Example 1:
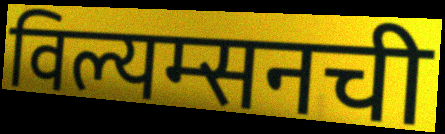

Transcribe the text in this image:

विल्यम्सनची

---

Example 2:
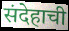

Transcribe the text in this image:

संदेहाची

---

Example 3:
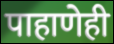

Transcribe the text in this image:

पाहाणेही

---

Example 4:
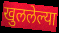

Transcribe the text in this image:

खुललेल्या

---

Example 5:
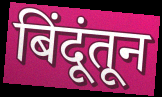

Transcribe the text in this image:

बिंदूंतून